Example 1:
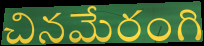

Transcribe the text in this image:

చినమేరంగి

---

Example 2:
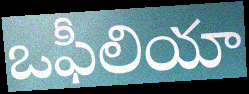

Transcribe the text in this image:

ఒఫీలియా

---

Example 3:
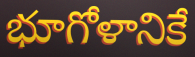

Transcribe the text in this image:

భూగోళానికే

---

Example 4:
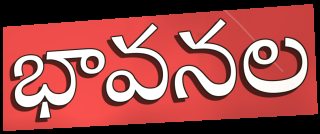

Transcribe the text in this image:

భావనల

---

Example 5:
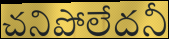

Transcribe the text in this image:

చనిపోలేదనీ